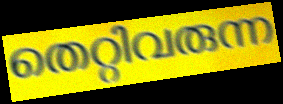
തെറ്റിവരുന്ന